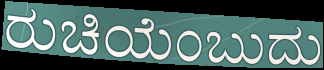
ರುಚಿಯೆಂಬುದು